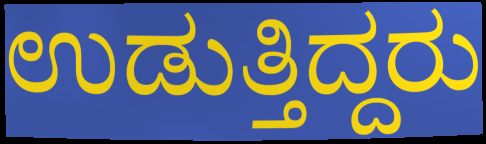
ಉಡುತ್ತಿದ್ದರು